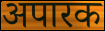
अपारक